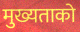
मुख्यताको